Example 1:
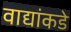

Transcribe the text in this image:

वाद्यांकडे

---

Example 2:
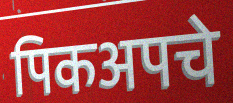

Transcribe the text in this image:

पिकअपचे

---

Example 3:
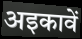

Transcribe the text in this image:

अइकावें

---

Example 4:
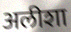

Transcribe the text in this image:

अलीशा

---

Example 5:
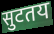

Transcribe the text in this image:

सुटतय